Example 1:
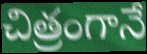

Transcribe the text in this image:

చిత్రంగానే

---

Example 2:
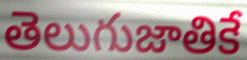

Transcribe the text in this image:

తెలుగుజాతికే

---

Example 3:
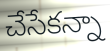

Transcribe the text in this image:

చేసేకన్నా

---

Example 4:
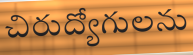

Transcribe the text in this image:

చిరుద్యోగులను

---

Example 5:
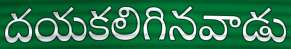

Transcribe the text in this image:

దయకలిగినవాడు